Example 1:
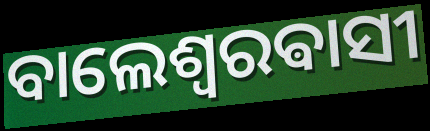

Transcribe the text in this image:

ବାଲେଶ୍ଵରଵାସୀ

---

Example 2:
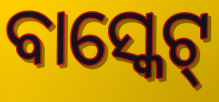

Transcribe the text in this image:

ବାସ୍କେଟ୍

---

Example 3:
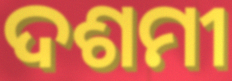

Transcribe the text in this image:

ଦଶମୀ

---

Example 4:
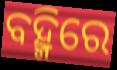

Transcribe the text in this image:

ବହ୍ମିରେ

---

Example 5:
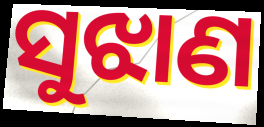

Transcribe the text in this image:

ସୁଝାଣ